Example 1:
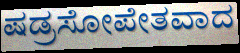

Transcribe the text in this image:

ಷಡ್ರಸೋಪೇತವಾದ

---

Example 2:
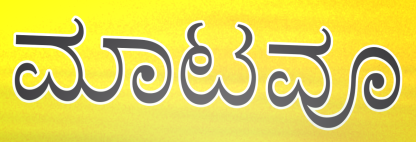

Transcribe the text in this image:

ಮಾಟವೂ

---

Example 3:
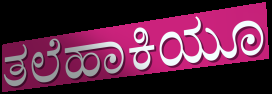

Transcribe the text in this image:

ತಲೆಹಾಕಿಯೂ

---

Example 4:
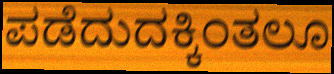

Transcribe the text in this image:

ಪಡೆದುದಕ್ಕಿಂತಲೂ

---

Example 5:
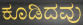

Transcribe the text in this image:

ಕೂಡಿದವು